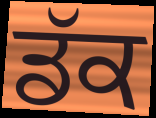
ਡੱਕ